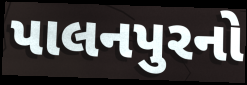
પાલનપુરનો